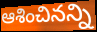
ఆశించినన్ని